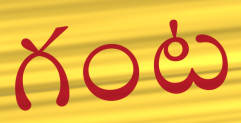
గంట